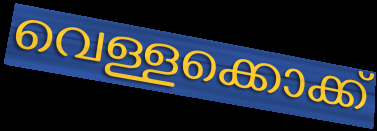
വെള്ളക്കൊക്ക്